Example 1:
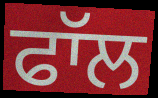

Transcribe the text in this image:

ਫਾੱਲ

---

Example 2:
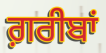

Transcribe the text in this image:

ਗ਼ਰੀਬਾਂ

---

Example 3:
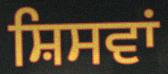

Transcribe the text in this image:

ਸ਼ਿਸਵਾਂ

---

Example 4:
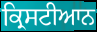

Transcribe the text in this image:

ਕ੍ਰਿਸਟੀਆਨ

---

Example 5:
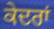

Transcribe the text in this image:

ਕੇਦਰਾਂ